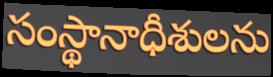
సంస్థానాధీశులను